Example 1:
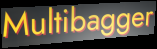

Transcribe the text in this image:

Multibagger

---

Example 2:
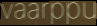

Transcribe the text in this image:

vaarppu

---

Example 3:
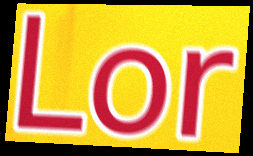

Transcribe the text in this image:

Lor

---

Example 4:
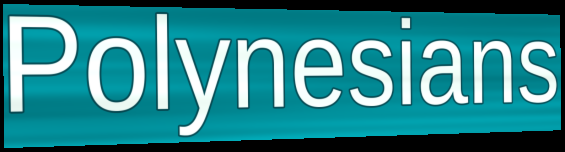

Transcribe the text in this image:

Polynesians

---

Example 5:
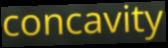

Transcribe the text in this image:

concavity